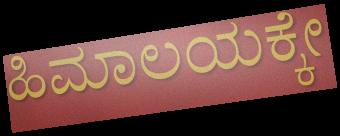
ಹಿಮಾಲಯಕ್ಕೇ